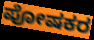
ಪೋಷಕರ